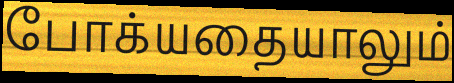
போக்யதையாலும்